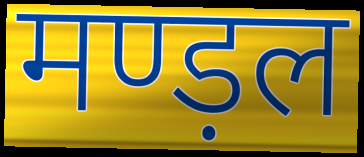
मण्ड़ल